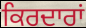
ਕਿਰਦਾਰਾਂ